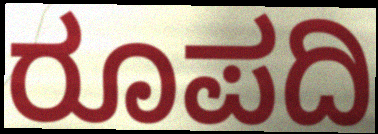
ರೂಪದಿ